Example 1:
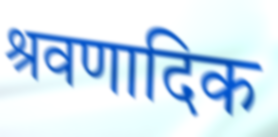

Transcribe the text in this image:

श्रवणादिक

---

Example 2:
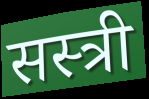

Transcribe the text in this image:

सस्त्री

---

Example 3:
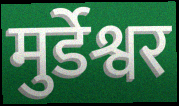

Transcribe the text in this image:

मुर्डेश्वर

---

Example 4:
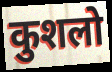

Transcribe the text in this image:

कुशलो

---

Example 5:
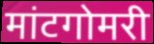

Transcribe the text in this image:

मांटगोमरी